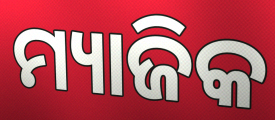
ମ୍ୟାଜିକ